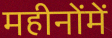
महीनोंमें